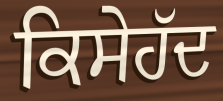
ਕਿਸੇਹੱਦ